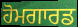
ਹੋਮਗਾਰਡ